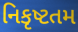
નિકૃષ્ટતમ